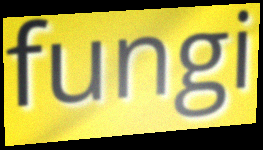
fungi